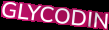
GLYCODIN